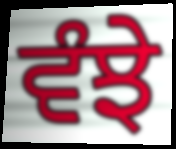
ਵੰਝੇ